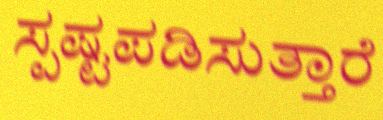
ಸ್ಪಷ್ಟಪಡಿಸುತ್ತಾರೆ